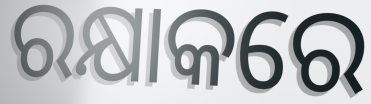
ରକ୍ଷାକରେ